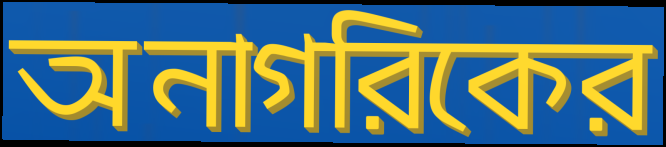
অনাগরিকের